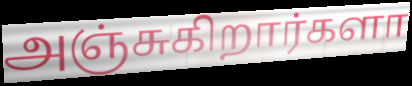
அஞ்சுகிறார்களா